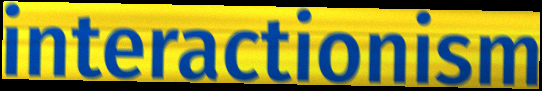
interactionism